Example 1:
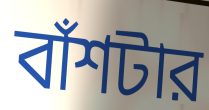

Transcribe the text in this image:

বাঁশটার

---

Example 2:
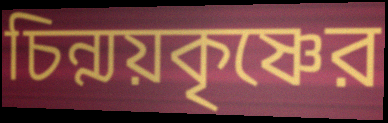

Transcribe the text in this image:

চিন্ময়কৃষ্ণের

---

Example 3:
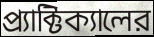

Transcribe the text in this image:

প্র্যাক্টিক্যালের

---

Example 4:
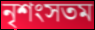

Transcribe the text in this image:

নৃশংসতম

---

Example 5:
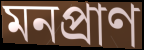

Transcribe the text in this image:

মনপ্রাণ